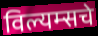
विल्यम्सचे